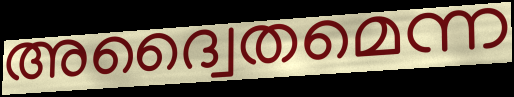
അദ്വൈതമെന്ന